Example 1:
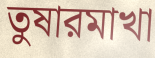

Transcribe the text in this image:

তুষারমাখা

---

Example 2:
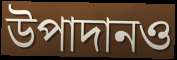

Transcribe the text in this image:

উপাদানও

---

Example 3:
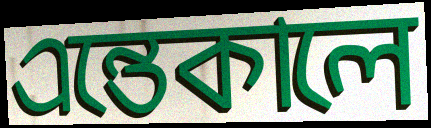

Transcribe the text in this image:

এন্তেকালে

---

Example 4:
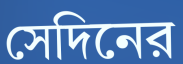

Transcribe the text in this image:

সেদিনের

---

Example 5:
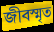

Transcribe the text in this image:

জীবস্মৃত